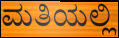
ಮತಿಯಲ್ಲಿ